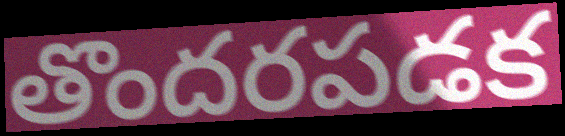
తొందరపడక